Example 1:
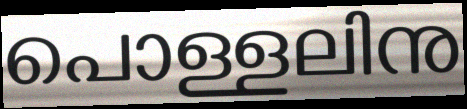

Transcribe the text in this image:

പൊള്ളലിനു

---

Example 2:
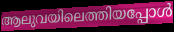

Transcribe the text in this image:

ആലുവയിലെത്തിയപ്പോൾ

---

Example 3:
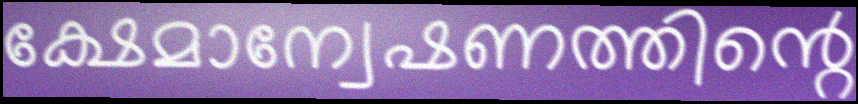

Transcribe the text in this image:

ക്ഷേമാന്വേഷണത്തിന്റെ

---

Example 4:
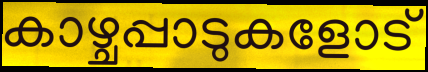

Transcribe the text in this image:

കാഴ്ചപ്പാടുകളോട്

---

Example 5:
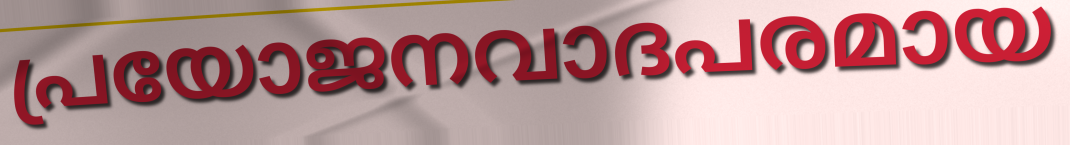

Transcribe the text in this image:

പ്രയോജനവാദപരമായ